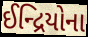
ઈન્દ્રિયોના